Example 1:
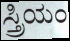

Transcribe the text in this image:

ಸ್ತ್ರಿಯಂ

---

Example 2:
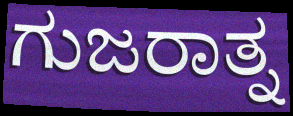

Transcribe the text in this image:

ಗುಜರಾತ್ನ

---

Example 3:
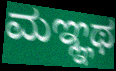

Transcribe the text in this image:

ಮಞ್ಞಥ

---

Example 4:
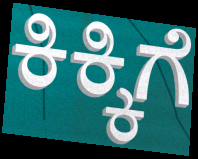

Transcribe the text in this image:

ಕಿಕ್ಕಿಗೆ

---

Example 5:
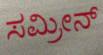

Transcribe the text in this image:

ಸಮ್ರೀನ್